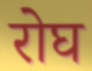
रोघ